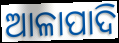
ଆଳାପାଦି